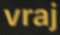
vraj